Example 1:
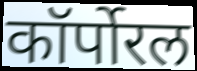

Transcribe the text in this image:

कॉर्पोरल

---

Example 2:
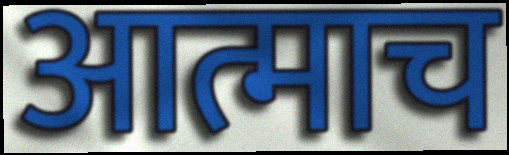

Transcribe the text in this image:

आत्माच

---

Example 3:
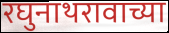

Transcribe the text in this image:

रघुनाथरावाच्या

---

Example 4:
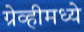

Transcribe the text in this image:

ग्रेव्हीमध्ये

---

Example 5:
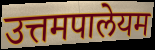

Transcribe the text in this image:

उत्तमपालेयम